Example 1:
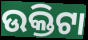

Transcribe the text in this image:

ଉକ୍ତିଟା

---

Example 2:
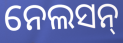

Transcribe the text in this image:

ନେଲସନ୍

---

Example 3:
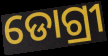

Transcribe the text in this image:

ଡୋଗ୍ରୀ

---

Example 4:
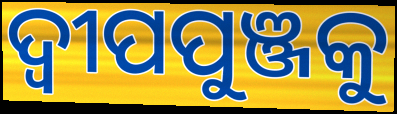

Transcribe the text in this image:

ଦ୍ଵୀପପୁଞ୍ଜକୁ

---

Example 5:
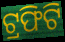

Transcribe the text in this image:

ଟ୍ରଫିଟି